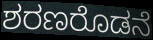
ಶರಣರೊಡನೆ